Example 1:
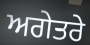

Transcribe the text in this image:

ਅਗੇਤਰੇ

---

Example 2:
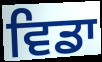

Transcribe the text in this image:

ਵਿਡਾ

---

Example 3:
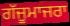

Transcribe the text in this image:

ਗੱਜੂਮਾਜਰਾ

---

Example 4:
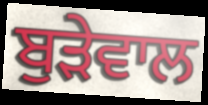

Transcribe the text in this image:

ਬੁੜੇਵਾਲ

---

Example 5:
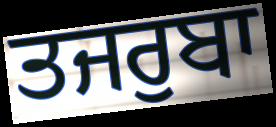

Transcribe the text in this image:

ਤਜਰੁਬਾ